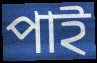
পাই